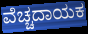
ವೆಚ್ಚದಾಯಕ